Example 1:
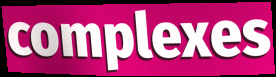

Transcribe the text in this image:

complexes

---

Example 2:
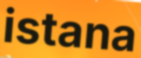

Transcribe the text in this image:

istana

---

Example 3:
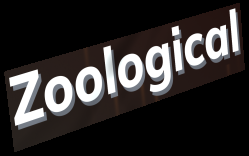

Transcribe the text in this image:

Zoological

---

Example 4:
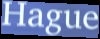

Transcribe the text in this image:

Hague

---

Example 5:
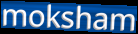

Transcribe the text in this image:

moksham